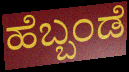
ಹೆಬ್ಬಂಡೆ